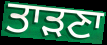
ਤਾੜਣਾ